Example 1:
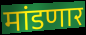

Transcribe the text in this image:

मांडणार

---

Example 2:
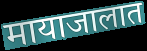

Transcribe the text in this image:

मायाजालात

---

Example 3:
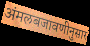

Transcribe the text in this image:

अंमलबजावणीनुसार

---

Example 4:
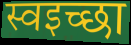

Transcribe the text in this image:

स्वइच्छा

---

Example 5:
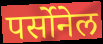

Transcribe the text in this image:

पर्सोनेल